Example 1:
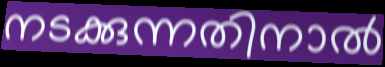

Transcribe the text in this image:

നടക്കുന്നതിനാൽ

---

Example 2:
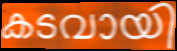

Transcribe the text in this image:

കടവായി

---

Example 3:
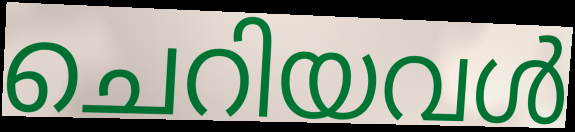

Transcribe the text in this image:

ചെറിയവൾ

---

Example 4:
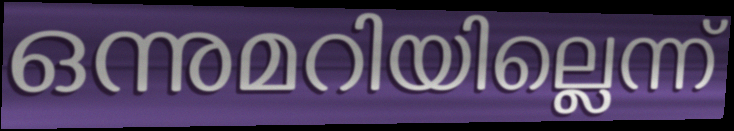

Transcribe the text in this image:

ഒന്നുമറിയില്ലെന്ന്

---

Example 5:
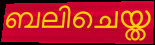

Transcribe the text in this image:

ബലിചെയ്ത